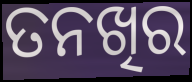
ତନଖିର